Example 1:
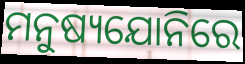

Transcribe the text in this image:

ମନୁଷ୍ୟଯୋନିରେ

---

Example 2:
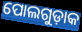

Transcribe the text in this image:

ପୋଲଗୁଡ଼ାକ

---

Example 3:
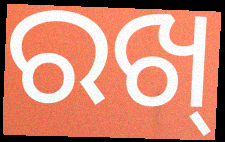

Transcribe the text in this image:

ରଖ୍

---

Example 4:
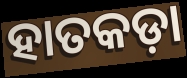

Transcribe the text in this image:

ହାତକଡ଼ା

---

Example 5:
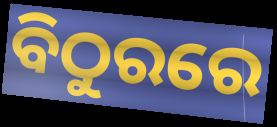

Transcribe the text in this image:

ବିଠୁରରେ